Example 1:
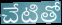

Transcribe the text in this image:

చేటితో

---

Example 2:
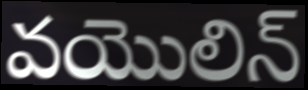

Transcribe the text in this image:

వయొలిన్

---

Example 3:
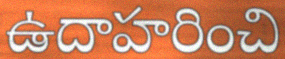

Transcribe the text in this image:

ఉదాహరించి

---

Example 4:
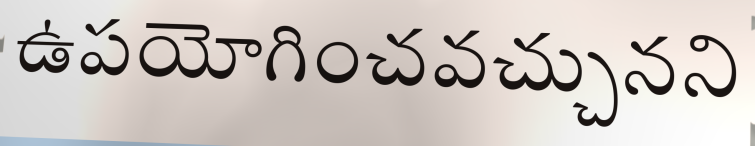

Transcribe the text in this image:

ఉపయోగించవచ్చునని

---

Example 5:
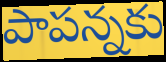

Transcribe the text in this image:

పాపన్నకు